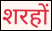
शरहों